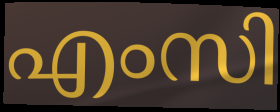
എംസി